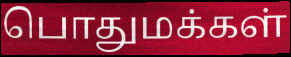
பொதுமக்கள்